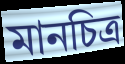
মানচিত্ৰ